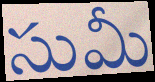
సుమీ